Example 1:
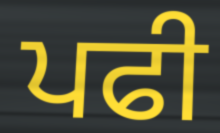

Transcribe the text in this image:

ਪਫੀ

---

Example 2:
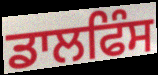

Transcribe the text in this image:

ਡਾਲਫਿੰਸ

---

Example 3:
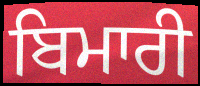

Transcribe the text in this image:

ਬਿਮਾਰੀ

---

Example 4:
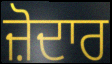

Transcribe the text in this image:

ਜ਼ੋਦਾਰ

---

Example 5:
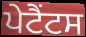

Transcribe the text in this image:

ਪੇਟੈਂਟਸ